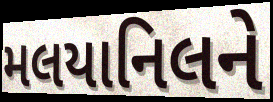
મલયાનિલને